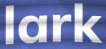
lark